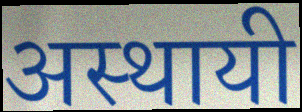
अस्थायी